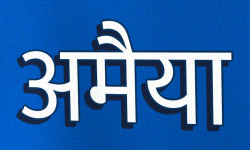
अमैया